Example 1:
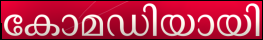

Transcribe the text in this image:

കോമഡിയായി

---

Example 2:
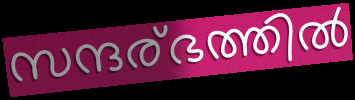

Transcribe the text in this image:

സന്ദര്ഭത്തിൽ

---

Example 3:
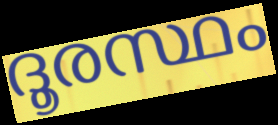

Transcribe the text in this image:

ദൂരസ്ഥം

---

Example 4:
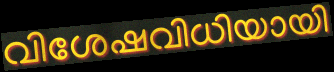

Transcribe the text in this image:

വിശേഷവിധിയായി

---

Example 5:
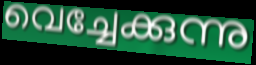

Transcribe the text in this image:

വെച്ചേക്കുന്നു